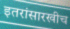
इतरांसारखीच